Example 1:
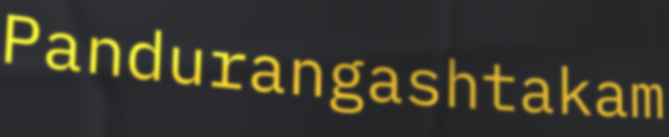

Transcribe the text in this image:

Pandurangashtakam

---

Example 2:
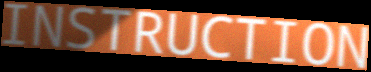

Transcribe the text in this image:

INSTRUCTION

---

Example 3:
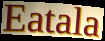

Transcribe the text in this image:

Eatala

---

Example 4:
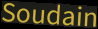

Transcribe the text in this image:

Soudain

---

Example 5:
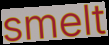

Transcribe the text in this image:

smelt